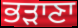
ਭੜਾਣਾ